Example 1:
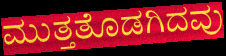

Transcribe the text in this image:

ಮುತ್ತತೊಡಗಿದವು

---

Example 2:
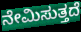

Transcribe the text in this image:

ನೇಮಿಸುತ್ತದೆ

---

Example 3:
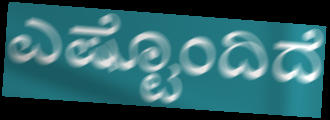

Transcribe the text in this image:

ಎಷ್ಟೊಂದಿದೆ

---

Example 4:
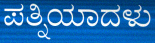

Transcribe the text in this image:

ಪತ್ನಿಯಾದಳು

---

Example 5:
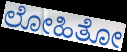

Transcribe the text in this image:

ಲೋಹಿತೋ